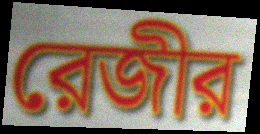
রেজীর